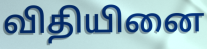
விதியினை